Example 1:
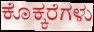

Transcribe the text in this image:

ಕೊಕ್ಕರೆಗಳು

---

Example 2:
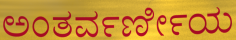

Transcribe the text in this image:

ಅಂತರ್ವರ್ಣೀಯ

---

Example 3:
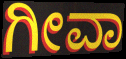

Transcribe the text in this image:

ಗೀವಾ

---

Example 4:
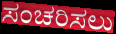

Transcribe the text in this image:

ಸಂಚರಿಸಲು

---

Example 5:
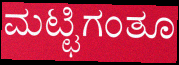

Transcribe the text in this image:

ಮಟ್ಟಿಗಂತೂ